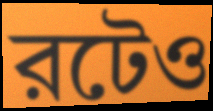
রটেও